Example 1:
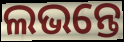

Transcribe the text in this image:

ଲଭନ୍ତେ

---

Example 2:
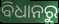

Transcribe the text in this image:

ବିଧାନରୁ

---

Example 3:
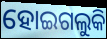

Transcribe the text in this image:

ହୋଇଗଲୁକି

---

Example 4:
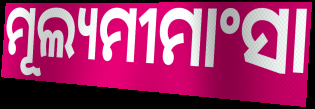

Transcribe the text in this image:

ମୂଲ୍ୟମୀମାଂସା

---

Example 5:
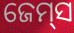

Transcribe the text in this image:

ଜେମ୍‍ସ